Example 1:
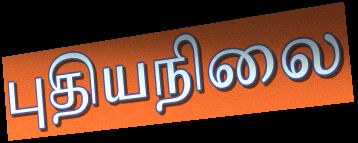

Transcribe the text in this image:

புதியநிலை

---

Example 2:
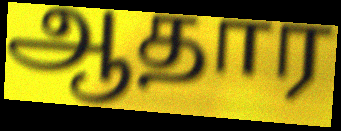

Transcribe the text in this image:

ஆதார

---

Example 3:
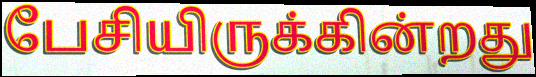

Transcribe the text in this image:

பேசியிருக்கின்றது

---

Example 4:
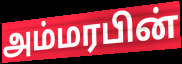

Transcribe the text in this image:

அம்மரபின்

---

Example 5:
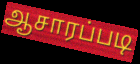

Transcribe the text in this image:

ஆசாரப்படி